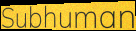
Subhuman